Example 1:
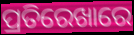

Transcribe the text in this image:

ପ୍ରତିରେଖାରେ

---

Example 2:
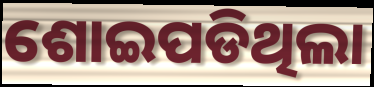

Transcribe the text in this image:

ଶୋଇପଡିଥିଲା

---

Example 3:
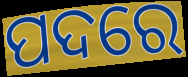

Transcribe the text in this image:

ପଦରେ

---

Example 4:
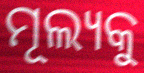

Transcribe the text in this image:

ମୂଲ୍ୟକୁ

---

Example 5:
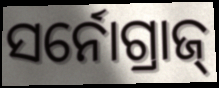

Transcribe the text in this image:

ସର୍ନୋଗ୍ରାଜ୍